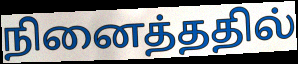
நினைத்ததில்